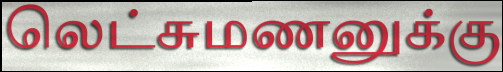
லெட்சுமணனுக்கு